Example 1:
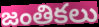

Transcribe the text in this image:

జంతికలు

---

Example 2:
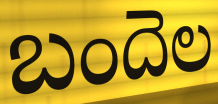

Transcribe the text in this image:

బందెల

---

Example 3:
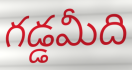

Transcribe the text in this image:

గడ్డమీది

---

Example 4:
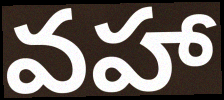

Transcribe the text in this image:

వహా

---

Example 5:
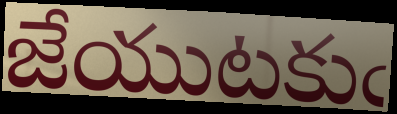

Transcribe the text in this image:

జేయుటకుఁ